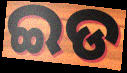
ଇଡ